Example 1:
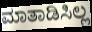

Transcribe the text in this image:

ಮಾತಾಡಿಸಿಲ್ಲ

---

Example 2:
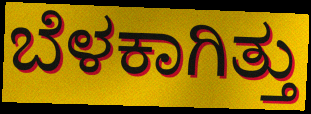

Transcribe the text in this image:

ಬೆಳಕಾಗಿತ್ತು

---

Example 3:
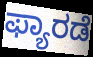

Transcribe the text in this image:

ಫ್ಯಾರಡೆ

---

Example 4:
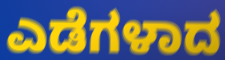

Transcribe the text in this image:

ಎಡೆಗಳಾದ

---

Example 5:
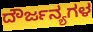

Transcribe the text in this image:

ದೌರ್ಜನ್ಯಗಳ